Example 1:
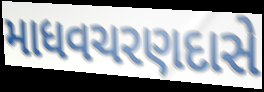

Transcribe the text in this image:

માધવચરણદાસે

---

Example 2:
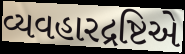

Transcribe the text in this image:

વ્યવહારદ્રષ્ટિએ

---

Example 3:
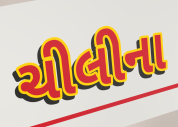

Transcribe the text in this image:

ચીલીના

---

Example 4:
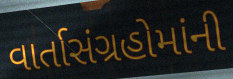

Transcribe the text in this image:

વાર્તાસંગ્રહોમાંની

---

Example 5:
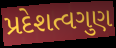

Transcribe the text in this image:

પ્રદેશત્વગુણ